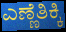
ಎಣ್ಣೆತಿಕ್ಕಿ